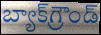
బ్యాక్‌గ్రౌండ్